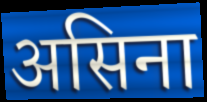
असिना